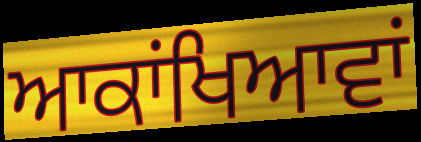
ਆਕਾਂਖਿਆਵਾਂ